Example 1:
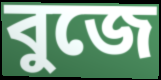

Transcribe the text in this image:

বুজে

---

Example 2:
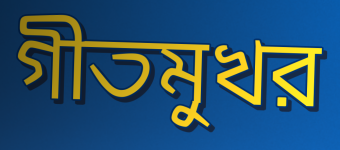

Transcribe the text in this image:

গীতমুখর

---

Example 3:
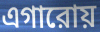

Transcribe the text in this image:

এগারোয়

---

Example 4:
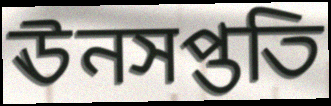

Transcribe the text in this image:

ঊনসপ্ততি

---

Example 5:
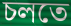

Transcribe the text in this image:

চলতে